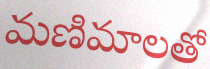
మణిమాలతో